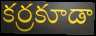
కర్రకూడా